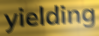
yielding